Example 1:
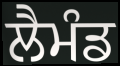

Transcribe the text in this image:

ਲੈਮੰਡ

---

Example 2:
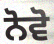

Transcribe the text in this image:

ਨੋਵੋ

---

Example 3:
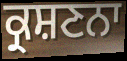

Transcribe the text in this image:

ਕ੍ਰਸ਼ਣਨਾ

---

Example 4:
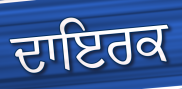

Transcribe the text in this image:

ਦਾਇਰਕ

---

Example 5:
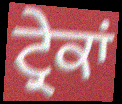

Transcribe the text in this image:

ਟ੍ਰੇਕਾਂ